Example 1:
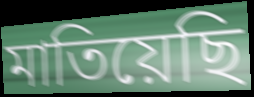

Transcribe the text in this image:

মাতিয়েছি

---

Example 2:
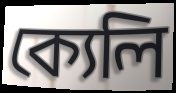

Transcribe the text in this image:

ক্যেলি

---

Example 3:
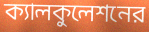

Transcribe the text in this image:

ক্যালকুলেশনের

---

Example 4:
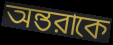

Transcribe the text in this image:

অন্তরাকে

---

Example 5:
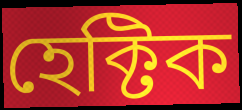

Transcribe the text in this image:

হেক্টিক